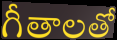
గీతాలతో